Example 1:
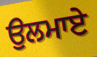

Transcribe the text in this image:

ਉਲਮਾਏ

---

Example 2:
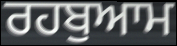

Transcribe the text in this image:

ਰਹਬੁਆਮ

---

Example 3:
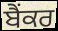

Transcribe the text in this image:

ਬੈਂਕਰ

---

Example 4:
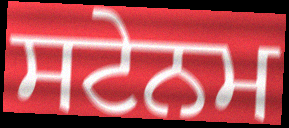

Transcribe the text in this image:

ਸਟੇਨਮ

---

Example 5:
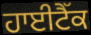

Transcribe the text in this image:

ਹਾਈਟੈੱਕ